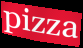
pizza